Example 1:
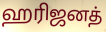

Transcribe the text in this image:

ஹரிஜனத்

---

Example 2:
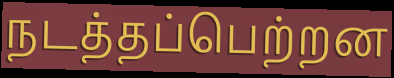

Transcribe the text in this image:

நடத்தப்பெற்றன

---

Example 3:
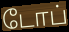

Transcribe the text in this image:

டோப்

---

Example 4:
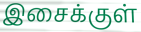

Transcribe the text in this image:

இசைக்குள்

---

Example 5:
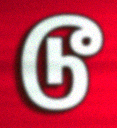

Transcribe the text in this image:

டூ